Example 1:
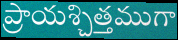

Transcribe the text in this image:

ప్రాయశ్చిత్తముగా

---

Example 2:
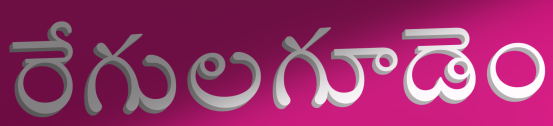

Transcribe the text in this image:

రేగులగూడెం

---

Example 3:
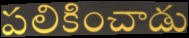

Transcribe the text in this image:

పలికించాడు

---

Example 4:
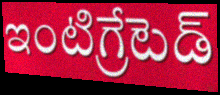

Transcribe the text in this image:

ఇంటిగ్రేటెడ్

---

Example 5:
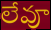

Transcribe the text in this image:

లేవూ